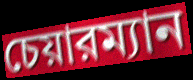
চেয়ারম্যান